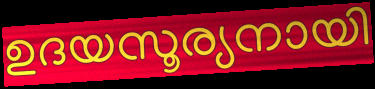
ഉദയസൂര്യനായി